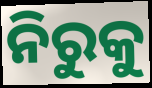
ନିରୁକୁ